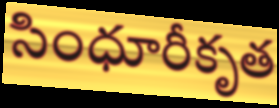
సింధూరీకృత